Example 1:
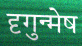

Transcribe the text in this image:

दृगुन्मेष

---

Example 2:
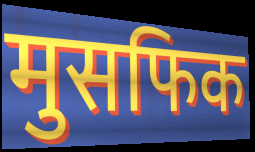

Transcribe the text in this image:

मुसफिक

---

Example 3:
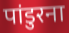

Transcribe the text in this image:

पांडुरना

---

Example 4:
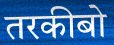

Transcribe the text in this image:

तरकीबो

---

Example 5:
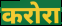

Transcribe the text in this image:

करोरा